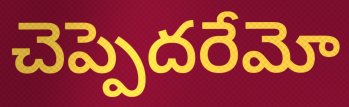
చెప్పెదరేమో